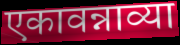
एकावन्नाव्या